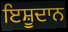
ਇਸ਼ੂਦਾਨ